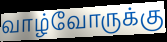
வாழ்வோருக்கு